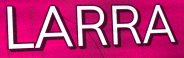
LARRA